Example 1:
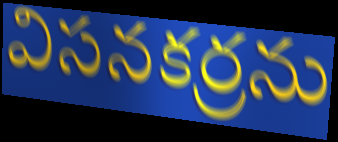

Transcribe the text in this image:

విసనకర్రను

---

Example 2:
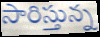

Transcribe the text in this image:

సారిస్తున్న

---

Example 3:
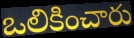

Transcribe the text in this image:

ఒలికించారు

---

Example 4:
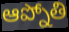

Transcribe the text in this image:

ఆప్నోతి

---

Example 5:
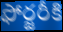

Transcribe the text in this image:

ఫోర్జరీకి